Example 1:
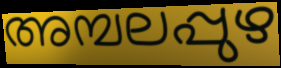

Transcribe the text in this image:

അമ്പലപ്പുഴ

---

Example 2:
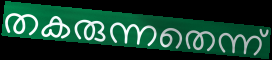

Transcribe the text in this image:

തകരുന്നതെന്ന്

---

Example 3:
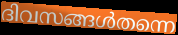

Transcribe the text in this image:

ദിവസങ്ങൾതന്നെ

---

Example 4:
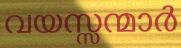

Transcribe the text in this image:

വയസ്സന്മാർ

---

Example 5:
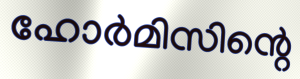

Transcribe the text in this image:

ഹോർമിസിന്റെ